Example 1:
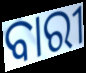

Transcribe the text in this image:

ବାରୀ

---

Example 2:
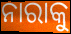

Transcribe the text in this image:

ନାରାକୁ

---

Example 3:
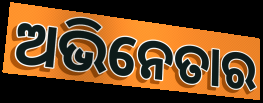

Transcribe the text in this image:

ଅଭିନେତାର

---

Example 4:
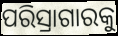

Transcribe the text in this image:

ପରିସ୍ରାଗାରକୁ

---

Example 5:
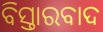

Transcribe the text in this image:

ବିସ୍ତାରବାଦ